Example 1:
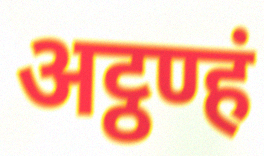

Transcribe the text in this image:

अट्ठण्हं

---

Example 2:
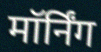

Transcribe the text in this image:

मॉर्निंग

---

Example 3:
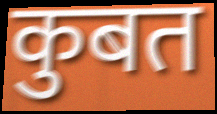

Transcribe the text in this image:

कुबत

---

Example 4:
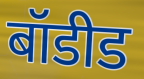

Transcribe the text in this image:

बॉडीड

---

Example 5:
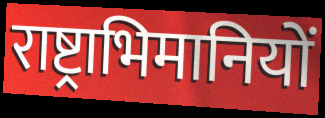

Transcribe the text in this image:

राष्ट्राभिमानियों